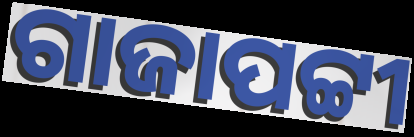
ଗାଜାପଟ୍ଟୀ